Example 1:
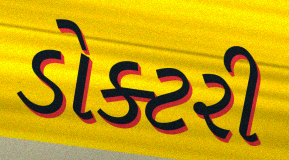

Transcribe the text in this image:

ડોક્ટરી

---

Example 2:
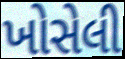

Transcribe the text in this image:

ખોસેલી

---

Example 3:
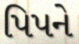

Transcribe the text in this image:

પિપને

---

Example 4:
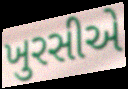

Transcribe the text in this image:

ખુરસીએ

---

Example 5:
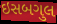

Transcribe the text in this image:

ઇસબગુલ